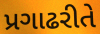
પ્રગાઢરીતે